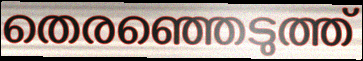
തെരഞ്ഞെടുത്ത്